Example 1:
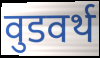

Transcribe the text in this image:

वुडवर्थ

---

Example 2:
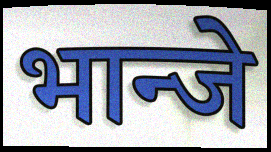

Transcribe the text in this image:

भान्जे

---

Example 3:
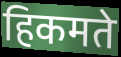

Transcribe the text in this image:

हिकमते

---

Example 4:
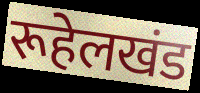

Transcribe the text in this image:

रूहेलखंड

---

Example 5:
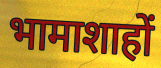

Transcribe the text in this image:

भामाशाहों